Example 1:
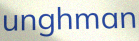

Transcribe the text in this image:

unghman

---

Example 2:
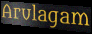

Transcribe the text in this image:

Arulagam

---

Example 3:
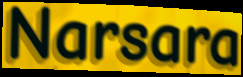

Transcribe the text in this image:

Narsara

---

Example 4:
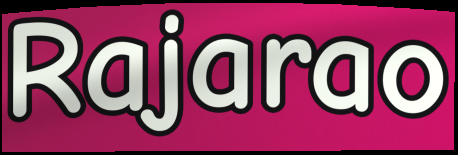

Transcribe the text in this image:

Rajarao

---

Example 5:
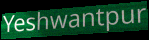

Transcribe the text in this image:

Yeshwantpur